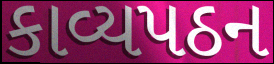
કાવ્યપઠન